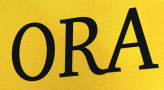
ORA